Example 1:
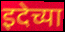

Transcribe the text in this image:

इदेच्या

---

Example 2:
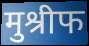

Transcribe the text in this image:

मुश्रीफ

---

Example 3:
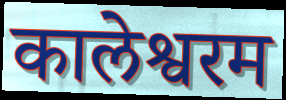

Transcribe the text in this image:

कालेश्वरम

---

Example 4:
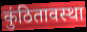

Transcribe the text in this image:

कुंठितावस्था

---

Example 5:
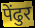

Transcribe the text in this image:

पेंढुर